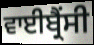
ਵਾਈਬ੍ਰੈਂਸੀ